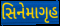
સિનેમાગૃહ